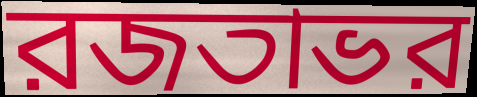
রজতাভর